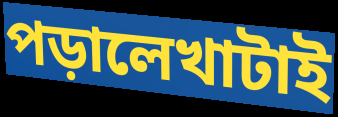
পড়ালেখাটাই